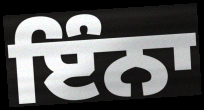
ਇੰਨਾ